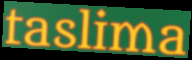
taslima